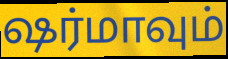
ஷர்மாவும்